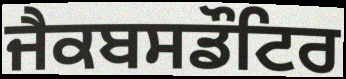
ਜੈਕਬਸਡੌਟਿਰ